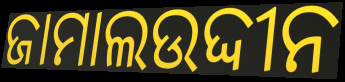
ଜାମାଲଉଦ୍ଦୀନ